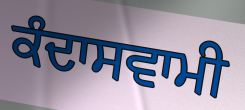
ਕੰਦਾਸਵਾਮੀ